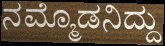
ನಮ್ಮೊಡನಿದ್ದು